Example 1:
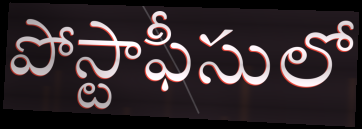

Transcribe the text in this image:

పోస్టాఫీసులో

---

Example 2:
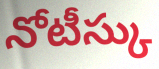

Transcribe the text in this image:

నోటీస్కు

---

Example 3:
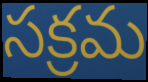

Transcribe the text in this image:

సక్రమ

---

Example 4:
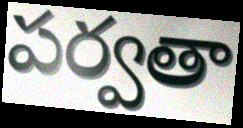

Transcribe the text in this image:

పర్వతా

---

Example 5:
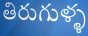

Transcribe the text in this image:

తిరుగుళ్ళ